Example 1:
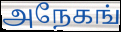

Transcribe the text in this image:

அநேகங்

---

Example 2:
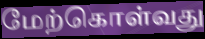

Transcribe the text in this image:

மேற்கொள்வது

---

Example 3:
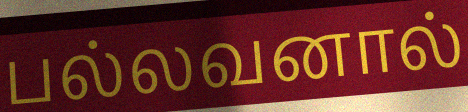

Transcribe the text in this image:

பல்லவனால்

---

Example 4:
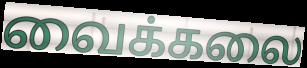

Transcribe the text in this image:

வைக்கலை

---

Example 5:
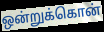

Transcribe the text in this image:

ஒன்றுக்கொன்